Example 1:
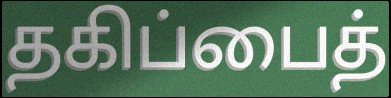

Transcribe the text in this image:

தகிப்பைத்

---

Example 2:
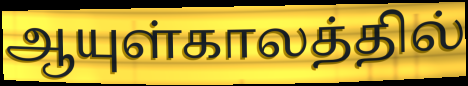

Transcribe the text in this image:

ஆயுள்காலத்தில்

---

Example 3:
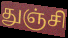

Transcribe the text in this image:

துஞ்சி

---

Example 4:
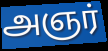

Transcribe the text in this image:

அஞர்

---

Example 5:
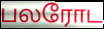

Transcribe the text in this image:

பலரோட